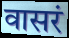
वासरं